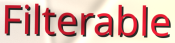
Filterable